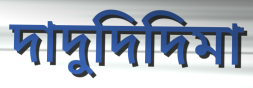
দাদুদিদিমা